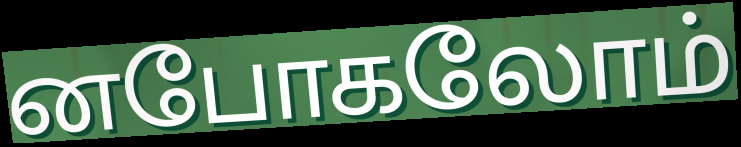
னபோகலோம்